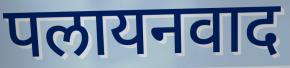
पलायनवाद